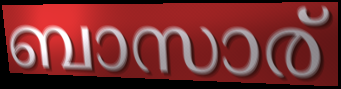
ബാസാര്